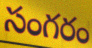
సంగరం